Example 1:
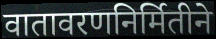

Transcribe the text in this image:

वातावरणनिर्मितीने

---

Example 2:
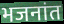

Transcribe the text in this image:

भजनांत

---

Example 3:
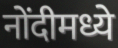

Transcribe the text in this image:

नोंदीमध्ये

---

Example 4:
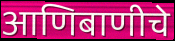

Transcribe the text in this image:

आणिबाणीचे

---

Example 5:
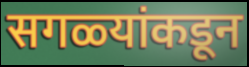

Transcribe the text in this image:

सगळ्यांकडून